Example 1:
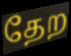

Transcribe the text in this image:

தேற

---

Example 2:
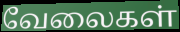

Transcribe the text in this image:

வேலைகள்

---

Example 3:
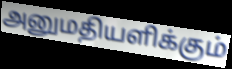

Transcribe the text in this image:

அனுமதியளிக்கும்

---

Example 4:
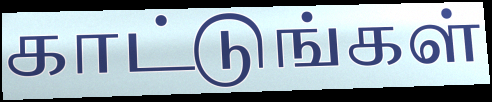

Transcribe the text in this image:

காட்டுங்கள்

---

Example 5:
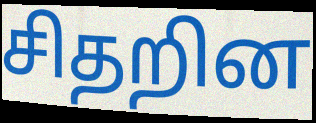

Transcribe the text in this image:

சிதறின